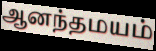
ஆனந்தமயம்